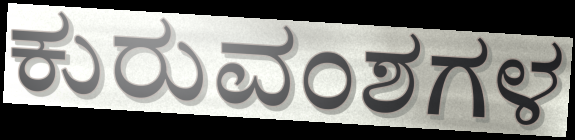
ಕುರುವಂಶಗಳ